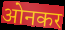
ओनकर